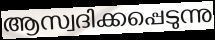
ആസ്വദിക്കപ്പെടുന്നു